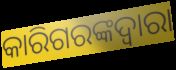
କାରିଗରଙ୍କଦ୍ୱାରା